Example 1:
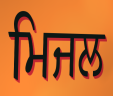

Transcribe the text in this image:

ਮਿਜਲ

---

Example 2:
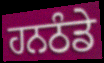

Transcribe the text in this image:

ਹਨਠੰਡੇ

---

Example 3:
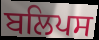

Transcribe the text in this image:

ਬਲਿਪਸ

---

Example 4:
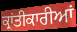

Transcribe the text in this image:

ਕ੍ਰਾਂਤੀਕਾਰੀਆਂ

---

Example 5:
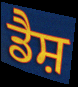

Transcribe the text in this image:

ਡੈਸ਼